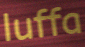
luffa